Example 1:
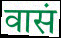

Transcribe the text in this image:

वासं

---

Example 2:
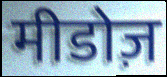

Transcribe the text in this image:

मीडोज़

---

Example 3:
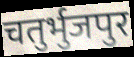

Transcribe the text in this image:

चतुर्भुजपुर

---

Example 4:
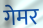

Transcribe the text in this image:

गेमर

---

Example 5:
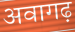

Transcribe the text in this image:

अवागढ़